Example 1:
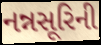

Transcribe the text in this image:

નન્નસૂરિની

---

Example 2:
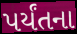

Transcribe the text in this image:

પર્યંતના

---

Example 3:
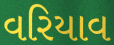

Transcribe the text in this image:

વરિયાવ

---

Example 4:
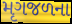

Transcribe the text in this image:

મૃગજળના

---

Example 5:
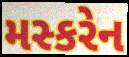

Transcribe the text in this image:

મસ્કરેન